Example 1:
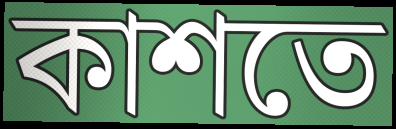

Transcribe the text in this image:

কাশতে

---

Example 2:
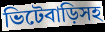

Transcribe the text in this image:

ভিটেবাড়িসহ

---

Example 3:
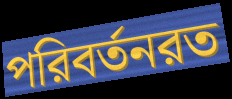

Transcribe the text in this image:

পরিবর্তনরত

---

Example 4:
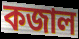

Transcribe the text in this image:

কজাল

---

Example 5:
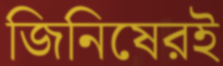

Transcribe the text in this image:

জিনিষেরই